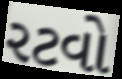
રટવો